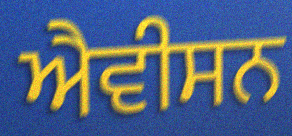
ਐਵੀਸਨ